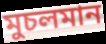
মুচলমান